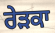
ਰੇੜਕਾ